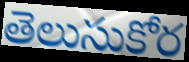
తెలుసుకోర